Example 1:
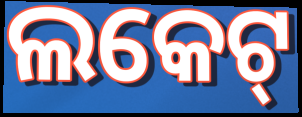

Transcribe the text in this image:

ଲକେଟ୍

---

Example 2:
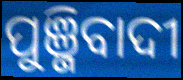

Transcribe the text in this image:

ପୁଞ୍ଜିବାଦୀ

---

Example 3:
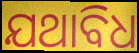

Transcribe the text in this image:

ଯଥାବିଧ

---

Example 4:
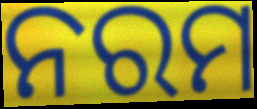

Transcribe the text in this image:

ନରମ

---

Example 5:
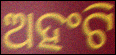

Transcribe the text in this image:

ଅହଂଟି